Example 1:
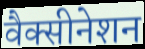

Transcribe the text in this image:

वैक्सीनेशन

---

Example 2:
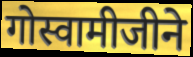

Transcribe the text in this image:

गोस्वामीजीने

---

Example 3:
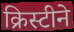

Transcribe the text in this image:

क्रिस्टीने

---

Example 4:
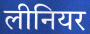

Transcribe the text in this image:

लीनियर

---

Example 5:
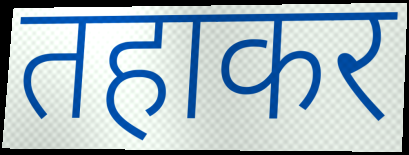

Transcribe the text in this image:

तहाकर